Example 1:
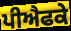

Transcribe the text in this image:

ਪੀਐਫਕੇ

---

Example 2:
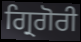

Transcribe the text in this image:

ਗ੍ਰਿਗੋਰੀ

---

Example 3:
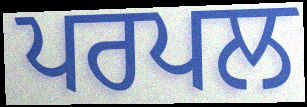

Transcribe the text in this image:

ਪਰਪਲ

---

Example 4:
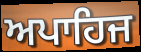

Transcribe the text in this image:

ਅਪਾਹਿਜ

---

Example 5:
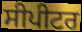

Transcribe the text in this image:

ਸੀਪੀਟਰ